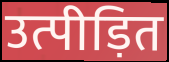
उत्पीड़ित